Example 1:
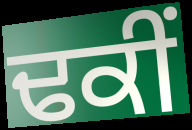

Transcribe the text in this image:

ਢਕੀਂ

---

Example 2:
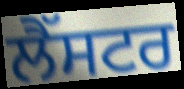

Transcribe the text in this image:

ਲੈੱਸਟਰ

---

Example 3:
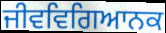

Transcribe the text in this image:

ਜੀਵਵਿਗਿਆਨਕ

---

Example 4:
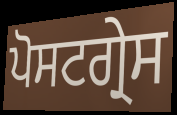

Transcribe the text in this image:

ਪੋਸਟਗ੍ਰੇਸ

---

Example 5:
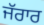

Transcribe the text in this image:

ਜੱਰਾਰ